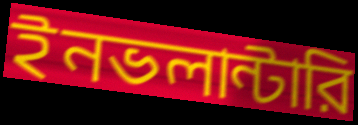
ইনভলান্টারি